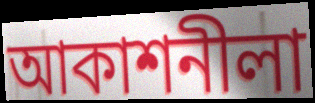
আকাশনীলা